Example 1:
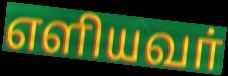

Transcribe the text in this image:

எளியவர்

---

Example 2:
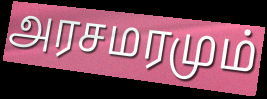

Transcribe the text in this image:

அரசமரமும்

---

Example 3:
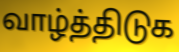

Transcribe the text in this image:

வாழ்த்திடுக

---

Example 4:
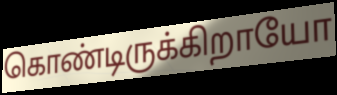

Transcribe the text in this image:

கொண்டிருக்கிறாயோ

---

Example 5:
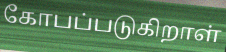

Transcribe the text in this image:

கோபப்படுகிறாள்